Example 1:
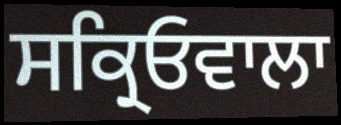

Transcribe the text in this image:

ਸਕ੍ਰਿਓਵਾਲਾ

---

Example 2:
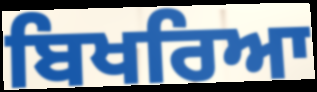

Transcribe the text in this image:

ਬਿਖਰਿਆ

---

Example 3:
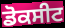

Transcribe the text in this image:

ਡੋਕਸੀਟ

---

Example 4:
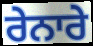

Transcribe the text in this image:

ਰੇਨਾਰੇ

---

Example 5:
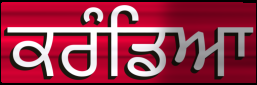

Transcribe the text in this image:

ਕਰੰਡਿਆ